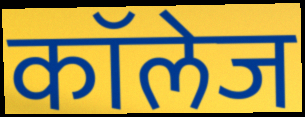
कॉलेज